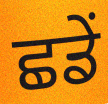
ਛਡੇਂ